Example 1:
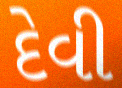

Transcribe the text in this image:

દેવી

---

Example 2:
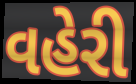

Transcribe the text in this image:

વહેરી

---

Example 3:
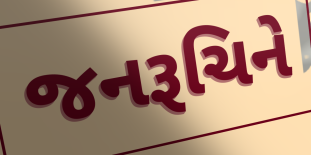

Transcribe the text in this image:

જનરૂચિને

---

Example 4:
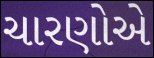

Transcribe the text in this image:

ચારણોએ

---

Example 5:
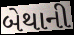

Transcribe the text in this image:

બેથાની